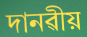
দানৱীয়